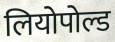
लियोपोल्ड